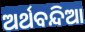
ଅର୍ଥବନ୍ଦିଆ